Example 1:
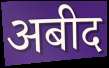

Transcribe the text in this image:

अबीद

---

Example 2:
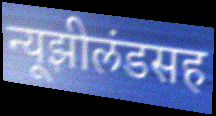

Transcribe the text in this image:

न्यूझीलंडसह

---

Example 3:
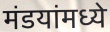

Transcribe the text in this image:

मंडयांमध्ये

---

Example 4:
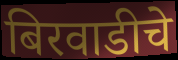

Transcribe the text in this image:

बिरवाडीचे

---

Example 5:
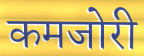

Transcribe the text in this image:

कमजोरी